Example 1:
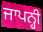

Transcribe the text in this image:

ਜਾਪਨ੍ਹੀ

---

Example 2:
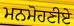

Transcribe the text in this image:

ਮਨਮੋਹਣੀਏ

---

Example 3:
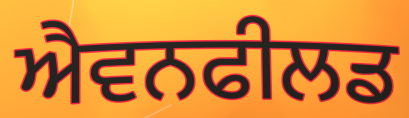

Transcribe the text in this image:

ਐਵਨਫੀਲਡ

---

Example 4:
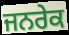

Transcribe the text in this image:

ਜਨਰੇਕ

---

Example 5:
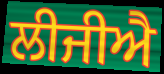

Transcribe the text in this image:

ਲੀਜੀਐ